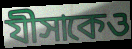
যীসাকেও